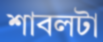
শাবলটা